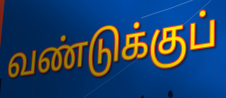
வண்டுக்குப்